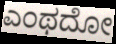
ಎಂಥದೋ